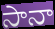
సానా